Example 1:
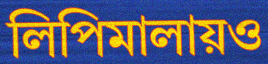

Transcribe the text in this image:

লিপিমালায়ও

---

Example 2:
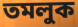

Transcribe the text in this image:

তমলুক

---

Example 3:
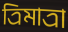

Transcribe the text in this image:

ত্রিমাত্রা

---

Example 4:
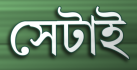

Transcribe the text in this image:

সেটাই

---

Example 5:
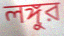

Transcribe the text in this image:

লঙ্গুর